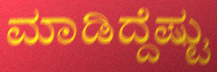
ಮಾಡಿದ್ದೆಷ್ಟು